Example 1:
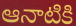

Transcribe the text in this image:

ఆనాటికి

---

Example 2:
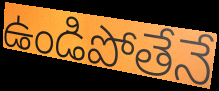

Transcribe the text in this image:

ఉండిపోతేనే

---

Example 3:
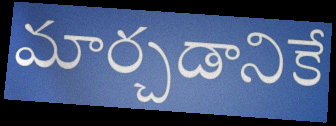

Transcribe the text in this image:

మార్చడానికే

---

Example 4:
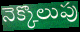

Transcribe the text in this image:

నెక్కొలుపు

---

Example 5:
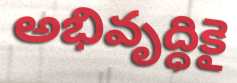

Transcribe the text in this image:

అభివృద్ధికై